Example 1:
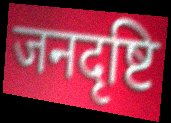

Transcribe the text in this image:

जनदृष्टि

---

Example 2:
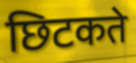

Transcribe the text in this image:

छिटकते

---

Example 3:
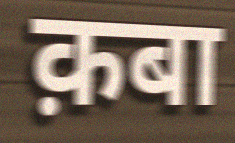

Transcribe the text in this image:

क़बा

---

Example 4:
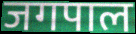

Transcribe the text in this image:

जगपाल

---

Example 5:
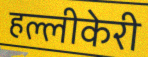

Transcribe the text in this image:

हल्लीकेरी